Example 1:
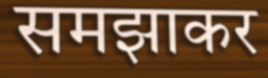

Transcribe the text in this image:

समझाकर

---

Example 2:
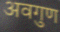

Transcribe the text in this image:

अवगुण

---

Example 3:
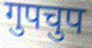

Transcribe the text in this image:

गुपचुप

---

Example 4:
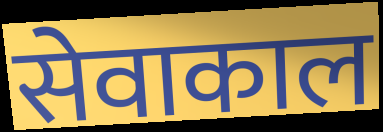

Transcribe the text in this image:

सेवाकाल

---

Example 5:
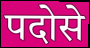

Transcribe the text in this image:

पदोसे